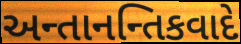
અન્તાનન્તિકવાદે